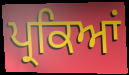
ਪ੍ਰਕਿਆਂ